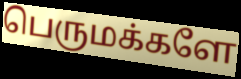
பெருமக்களே